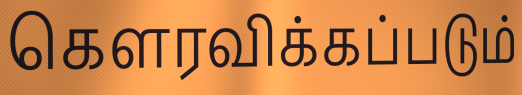
கௌரவிக்கப்படும்